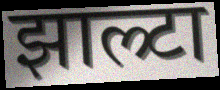
झाल्टा